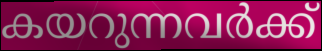
കയറുന്നവർക്ക്